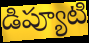
డిప్యూటి